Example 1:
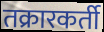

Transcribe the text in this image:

तक्रारकर्ती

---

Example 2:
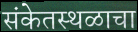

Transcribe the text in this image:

संकेतस्थळाचा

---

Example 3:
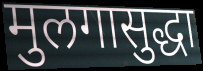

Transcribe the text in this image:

मुलगासुद्धा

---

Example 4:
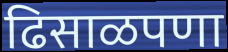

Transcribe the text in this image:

ढिसाळपणा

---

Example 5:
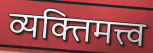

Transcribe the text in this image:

व्यक्तिमत्त्व